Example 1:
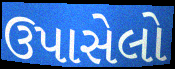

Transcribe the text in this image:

ઉપાસેલો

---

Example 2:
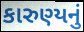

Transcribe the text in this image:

કારુણ્યનું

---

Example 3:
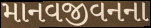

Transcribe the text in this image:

માનવજીવનના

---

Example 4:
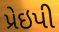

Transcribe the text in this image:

પ્રેઇપી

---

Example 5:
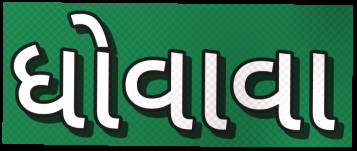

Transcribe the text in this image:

ધોવાવા